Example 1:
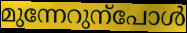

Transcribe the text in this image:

മുന്നേറുന്പോൾ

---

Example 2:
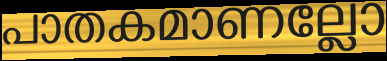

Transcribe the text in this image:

പാതകമാണല്ലോ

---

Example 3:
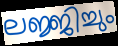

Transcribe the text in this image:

ലജ്ജിച്ചും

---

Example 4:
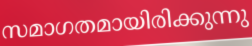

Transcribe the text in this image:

സമാഗതമായിരിക്കുന്നു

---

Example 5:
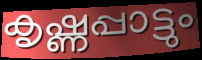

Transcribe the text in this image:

കൃഷ്ണപ്പാട്ടും